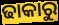
ଢାକାରୁ